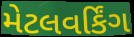
મેટલવર્કિંગ